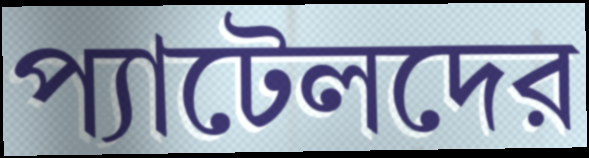
প্যাটেলদের